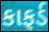
કાફર્ડ